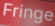
Fringe